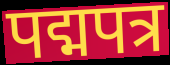
पद्मपत्र